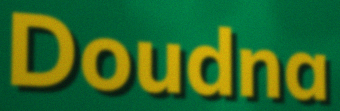
Doudna